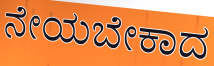
ನೇಯಬೇಕಾದ